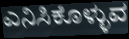
ಎನಿಸಿಕೊಳ್ಳುವ